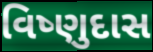
વિષ્ણુદાસ